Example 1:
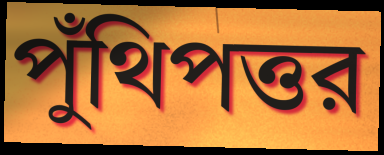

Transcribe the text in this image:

পুঁথিপত্তর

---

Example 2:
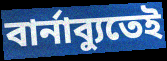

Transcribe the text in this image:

বার্নাব্যুতেই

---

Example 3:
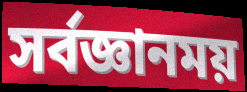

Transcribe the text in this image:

সর্বজ্ঞানময়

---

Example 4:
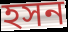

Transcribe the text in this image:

হসন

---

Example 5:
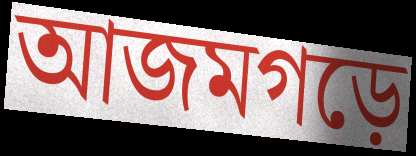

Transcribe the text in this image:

আজমগড়ে